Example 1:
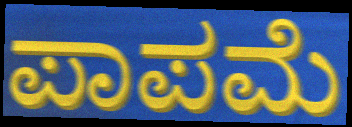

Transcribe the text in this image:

ಪಾಪಮೆ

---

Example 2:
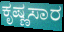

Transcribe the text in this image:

ಕೃಷ್ಣಸಾರ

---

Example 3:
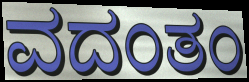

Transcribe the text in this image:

ವದಂತಂ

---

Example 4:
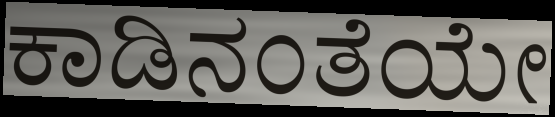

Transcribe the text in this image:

ಕಾಡಿನಂತೆಯೇ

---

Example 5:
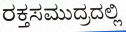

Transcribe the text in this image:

ರಕ್ತಸಮುದ್ರದಲ್ಲಿ